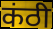
कंठी